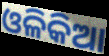
ଓଳିକିଆ